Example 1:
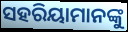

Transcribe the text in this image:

ସହରିୟାମାନଙ୍କୁ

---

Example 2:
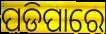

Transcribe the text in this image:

ପଡିପାରେ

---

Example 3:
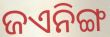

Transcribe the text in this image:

ଜଏନିଙ୍ଗ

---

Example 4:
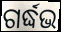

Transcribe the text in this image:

ଗର୍ଦ୍ଧଭ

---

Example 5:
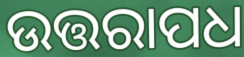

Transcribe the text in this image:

ଉତ୍ତରାପଧ